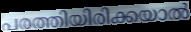
പരത്തിയിരിക്കയാൽ